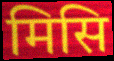
मिसि